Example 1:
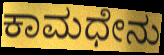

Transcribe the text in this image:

ಕಾಮಧೇನು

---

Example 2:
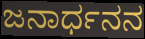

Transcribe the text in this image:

ಜನಾರ್ಧನನ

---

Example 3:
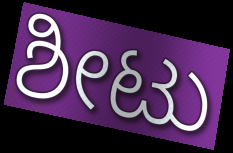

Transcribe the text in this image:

ಶೀಟು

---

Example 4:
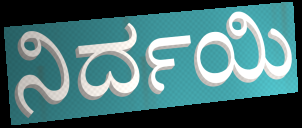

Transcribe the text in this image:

ನಿರ್ದಯಿ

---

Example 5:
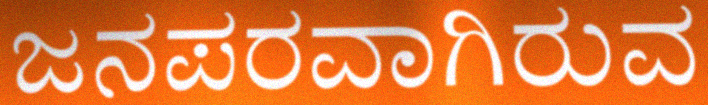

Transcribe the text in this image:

ಜನಪರವಾಗಿರುವ